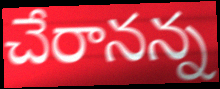
చేరానన్న